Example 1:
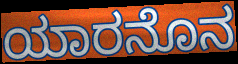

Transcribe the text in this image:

ಯಾರನೊನ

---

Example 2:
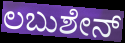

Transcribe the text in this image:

ಲಬುಶೇನ್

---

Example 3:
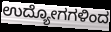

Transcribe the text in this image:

ಉದ್ಯೋಗಗಳಿಂದ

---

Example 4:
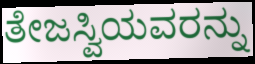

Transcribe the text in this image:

ತೇಜಸ್ವಿಯವರನ್ನು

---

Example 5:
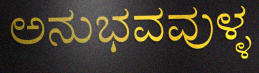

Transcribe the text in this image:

ಅನುಭವವುಳ್ಳ